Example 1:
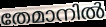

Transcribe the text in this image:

തേമാനിൽ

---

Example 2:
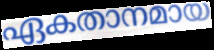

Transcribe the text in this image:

ഏകതാനമായ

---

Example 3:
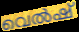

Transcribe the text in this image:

വെൽഷ്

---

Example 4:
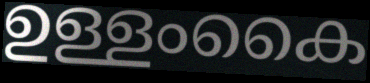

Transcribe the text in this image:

ഉള്ളംകൈ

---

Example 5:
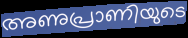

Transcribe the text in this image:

അണുപ്രാണിയുടെ